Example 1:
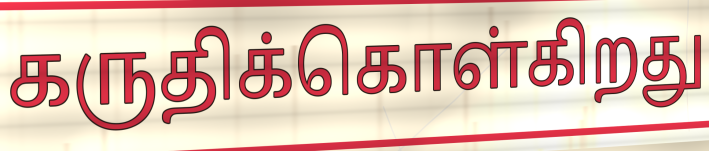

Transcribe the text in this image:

கருதிக்கொள்கிறது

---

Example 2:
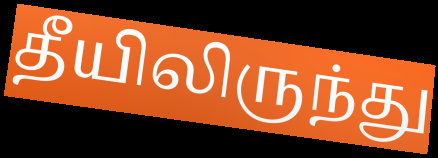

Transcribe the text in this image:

தீயிலிருந்து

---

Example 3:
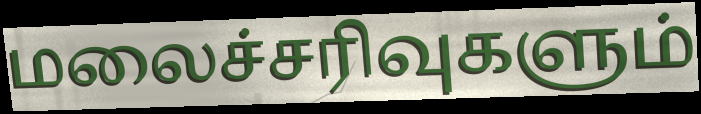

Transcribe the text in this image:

மலைச்சரிவுகளும்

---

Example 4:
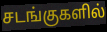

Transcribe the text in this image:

சடங்குகளில்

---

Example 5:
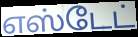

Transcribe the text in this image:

எஸ்டேட்